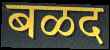
बळद